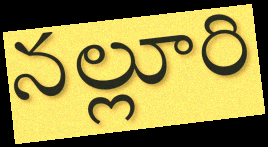
నల్లూరి